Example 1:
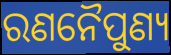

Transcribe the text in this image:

ରଣନୈପୁଣ୍ୟ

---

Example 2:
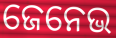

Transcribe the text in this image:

ଜେନେଭ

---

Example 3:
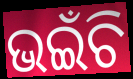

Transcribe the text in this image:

ଭଇଁଚି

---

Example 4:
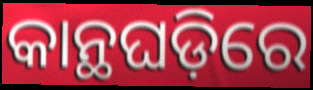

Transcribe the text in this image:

କାନ୍ଥଘଡ଼ିରେ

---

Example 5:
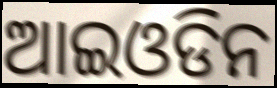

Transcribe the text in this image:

ଆଇଓଡିନ